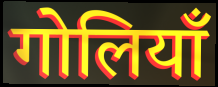
गोलियाँ